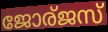
ജോര്ജസ്